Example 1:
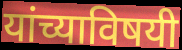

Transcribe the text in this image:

यांच्याविषयी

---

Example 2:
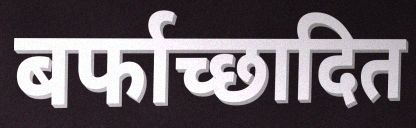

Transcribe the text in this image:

बर्फाच्छादित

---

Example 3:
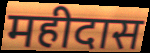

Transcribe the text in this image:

महीदास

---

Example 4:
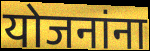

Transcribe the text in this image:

योजनांना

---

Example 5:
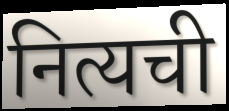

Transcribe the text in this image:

नित्यची